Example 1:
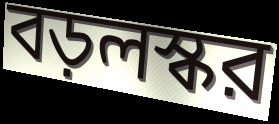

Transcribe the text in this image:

বড়লস্কর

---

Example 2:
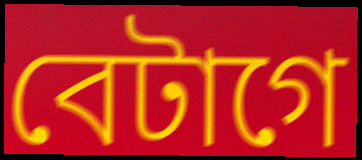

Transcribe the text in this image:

বেটাগে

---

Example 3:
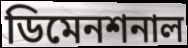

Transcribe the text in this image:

ডিমেনশনাল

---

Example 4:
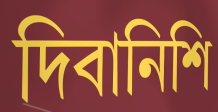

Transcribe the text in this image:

দিবানিশি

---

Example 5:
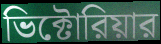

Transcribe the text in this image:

ভিক্টোরিয়ার